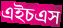
এইচএস